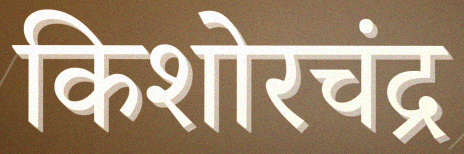
किशोरचंद्र